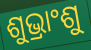
ଶୁଭ୍ରାଂଶୁ